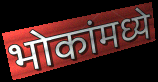
भोकांमध्ये